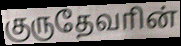
குருதேவரின்